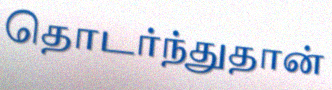
தொடர்ந்துதான்